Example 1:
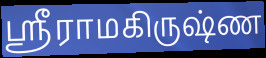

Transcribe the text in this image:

ஸ்ரீராமகிருஷ்ண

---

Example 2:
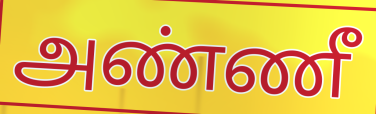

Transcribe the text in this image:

அண்ணீ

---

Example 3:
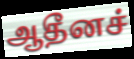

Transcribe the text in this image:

ஆதீனச்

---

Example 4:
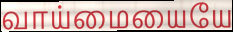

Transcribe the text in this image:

வாய்மையையே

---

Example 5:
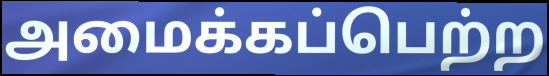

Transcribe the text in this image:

அமைக்கப்பெற்ற